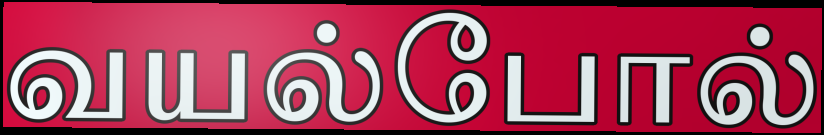
வயல்போல்